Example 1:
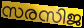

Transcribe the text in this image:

സരസിജ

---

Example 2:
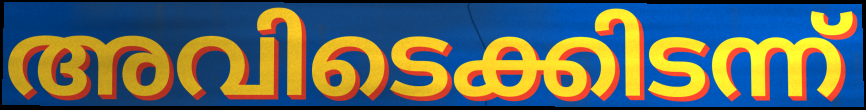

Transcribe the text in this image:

അവിടെക്കിടന്ന്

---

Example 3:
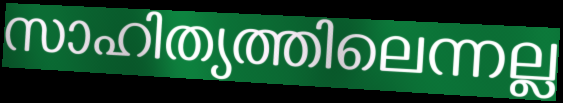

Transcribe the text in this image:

സാഹിത്യത്തിലെന്നല്ല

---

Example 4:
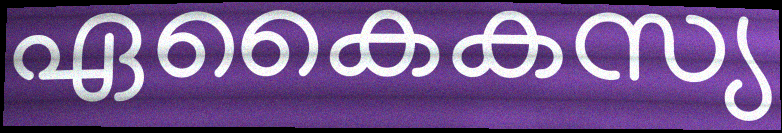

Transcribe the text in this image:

ഏകൈകസ്യ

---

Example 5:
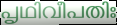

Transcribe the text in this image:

പൃഥിവീപതിഃ